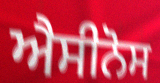
ਐਸੀਨੋਸ